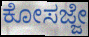
ಕೋಸಜ್ಜೇ